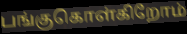
பங்குகொள்கிறோம்